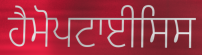
ਹੈਮੋਪਟਾਈਸਿਸ